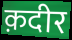
क़दीर